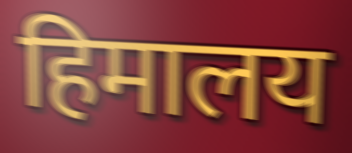
हिमालय